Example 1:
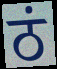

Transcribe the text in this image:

ठं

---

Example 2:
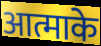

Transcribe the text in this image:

आत्माके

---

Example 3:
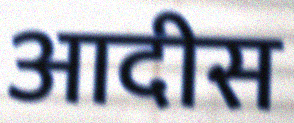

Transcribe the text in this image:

आदीस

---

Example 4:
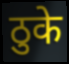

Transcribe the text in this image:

ठुके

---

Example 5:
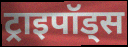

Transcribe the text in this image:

ट्राइपॉड्स